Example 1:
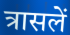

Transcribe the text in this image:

त्रासलें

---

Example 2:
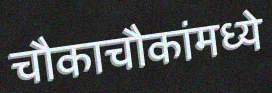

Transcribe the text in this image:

चौकाचौकांमध्ये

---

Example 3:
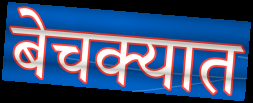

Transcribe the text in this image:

बेचक्यात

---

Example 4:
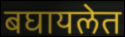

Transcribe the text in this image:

बघायलेत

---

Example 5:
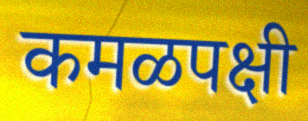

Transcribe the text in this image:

कमळपक्षी